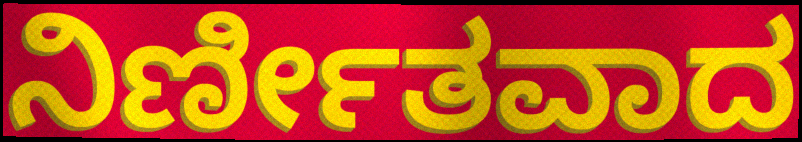
ನಿರ್ಣೀತವಾದ